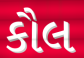
કૌલ